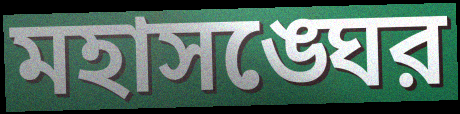
মহাসঙ্ঘের